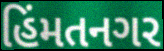
હિંમતનગર